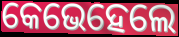
କେଭେହେଲେ